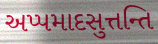
અપ્પમાદસુત્તન્તિ